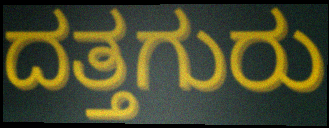
ದತ್ತಗುರು